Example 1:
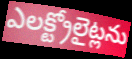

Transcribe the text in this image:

ఎలక్ట్రోలైట్లను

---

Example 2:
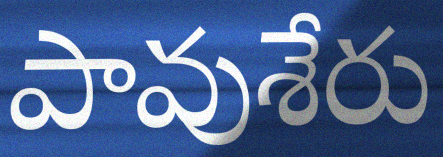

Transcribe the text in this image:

పావుశేరు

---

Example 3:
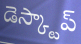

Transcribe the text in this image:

డెస్క్టాప్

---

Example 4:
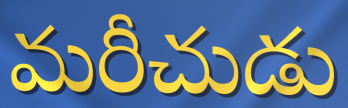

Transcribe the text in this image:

మరీచుడు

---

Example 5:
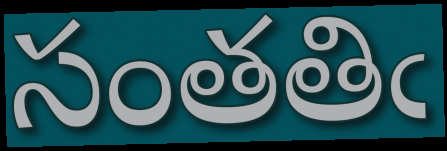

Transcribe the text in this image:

సంతతిఁ